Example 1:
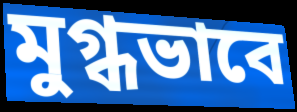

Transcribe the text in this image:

মুগ্ধভাবে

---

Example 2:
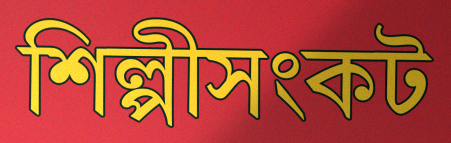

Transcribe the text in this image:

শিল্পীসংকট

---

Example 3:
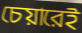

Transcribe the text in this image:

চেয়ারেই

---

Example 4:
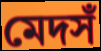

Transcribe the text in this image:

মেদসঁ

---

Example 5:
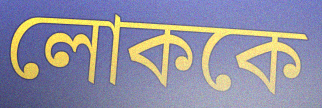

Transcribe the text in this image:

লোককে